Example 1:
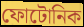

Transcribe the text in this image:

ফোটোনিক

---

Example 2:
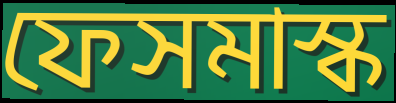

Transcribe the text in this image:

ফেসমাস্ক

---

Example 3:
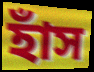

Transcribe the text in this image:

হাঁস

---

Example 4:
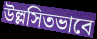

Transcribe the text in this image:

উল্লসিতভাবে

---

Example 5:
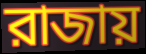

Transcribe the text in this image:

রাজায়